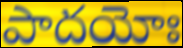
పాదయోః